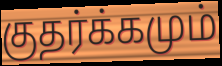
குதர்க்கமும்